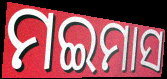
ମଇମାସ